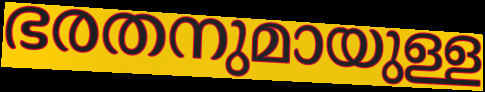
ഭരതനുമായുള്ള